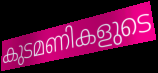
കുടമണികളുടെ